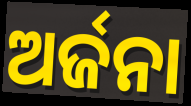
ଅର୍ଜନା